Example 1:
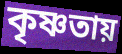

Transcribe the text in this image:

কৃষ্ণতায়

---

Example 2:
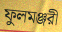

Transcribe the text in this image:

ফুলমঞ্জরী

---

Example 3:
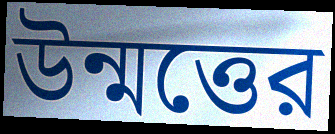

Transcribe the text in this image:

উন্মত্তের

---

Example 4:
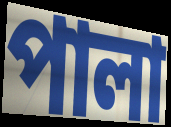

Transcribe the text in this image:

পালা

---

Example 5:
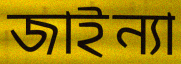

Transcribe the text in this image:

জাইন্যা